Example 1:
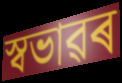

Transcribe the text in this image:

স্বভাৱৰ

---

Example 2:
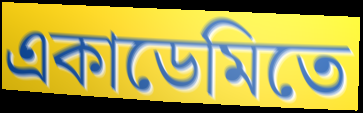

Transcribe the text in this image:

একাডেমিতে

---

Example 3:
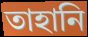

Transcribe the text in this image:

তাহানি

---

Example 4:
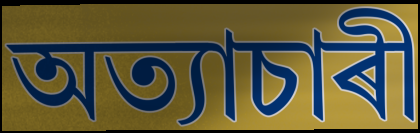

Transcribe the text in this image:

অত্যাচাৰী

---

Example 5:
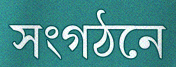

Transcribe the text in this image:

সংগঠনে